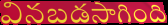
వినబడసాగింది